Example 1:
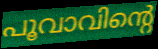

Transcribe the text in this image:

പൂവാവിന്റെ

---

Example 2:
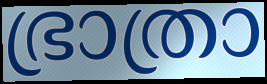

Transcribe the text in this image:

ഭ്രാത്രാ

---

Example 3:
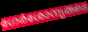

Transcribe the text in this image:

ഗേർശോന്യരുടെ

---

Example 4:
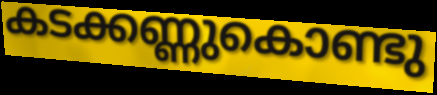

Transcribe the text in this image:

കടക്കണ്ണുകൊണ്ടു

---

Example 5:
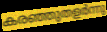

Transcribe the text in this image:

കരഞ്ഞുതളർന്നു